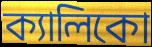
ক্যালিকো